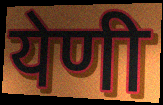
येणी